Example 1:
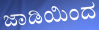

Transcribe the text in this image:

ಜಾಡಿಯಿಂದ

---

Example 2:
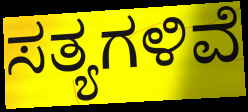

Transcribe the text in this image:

ಸತ್ಯಗಳಿವೆ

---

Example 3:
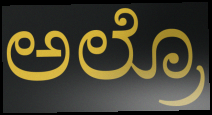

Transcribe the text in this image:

ಅಲ್ರೊ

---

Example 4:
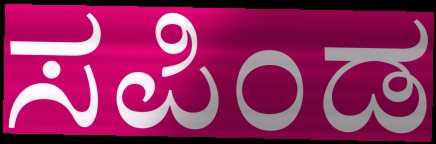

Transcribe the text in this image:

ಸಪಿಂಡ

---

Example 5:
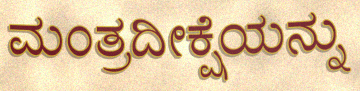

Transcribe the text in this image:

ಮಂತ್ರದೀಕ್ಷೆಯನ್ನು